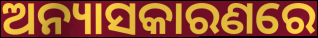
ଅନ୍ୟାସକାରଣରେ